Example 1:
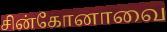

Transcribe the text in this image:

சின்கோனாவை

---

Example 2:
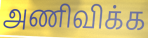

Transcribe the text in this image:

அணிவிக்க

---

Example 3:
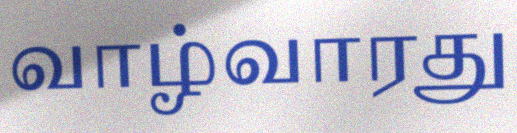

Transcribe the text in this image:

வாழ்வாரது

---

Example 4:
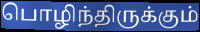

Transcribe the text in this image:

பொழிந்திருக்கும்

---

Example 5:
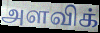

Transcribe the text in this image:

அளவிக்